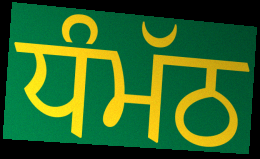
ਧੰਮੱਠ